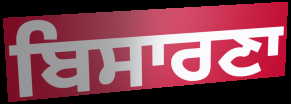
ਬਿਸਾਰਣਾ